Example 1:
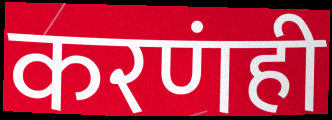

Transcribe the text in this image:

करणंही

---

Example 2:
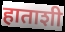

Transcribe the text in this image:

हाताशी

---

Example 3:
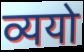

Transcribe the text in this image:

व्ययो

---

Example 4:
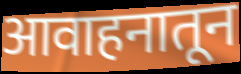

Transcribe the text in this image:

आवाहनातून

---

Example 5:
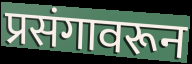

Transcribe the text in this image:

प्रसंगावरून